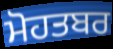
ਮੋਹਤਬਰ